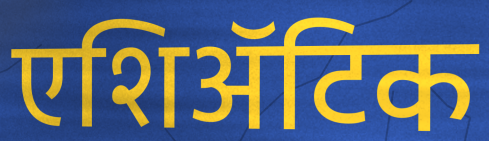
एशिॲटिक